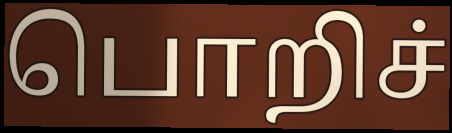
பொறிச்